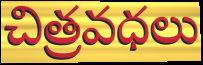
చిత్రవధలు